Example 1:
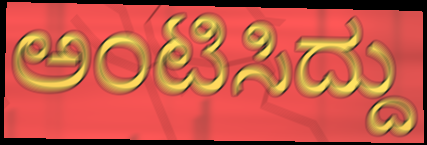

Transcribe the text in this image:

ಅಂಟಿಸಿದ್ದು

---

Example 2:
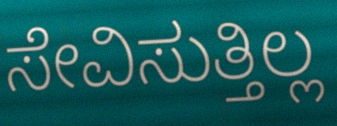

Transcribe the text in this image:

ಸೇವಿಸುತ್ತಿಲ್ಲ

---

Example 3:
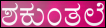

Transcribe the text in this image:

ಶಕುಂತಲೆ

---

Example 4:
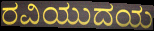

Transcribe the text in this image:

ರವಿಯುದಯ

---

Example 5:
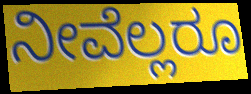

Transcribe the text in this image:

ನೀವೆಲ್ಲರೂ